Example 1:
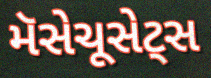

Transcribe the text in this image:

મૅસેચૂસેટ્સ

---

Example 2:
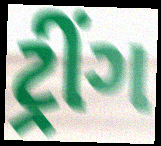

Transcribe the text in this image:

ટ્રીંગ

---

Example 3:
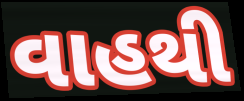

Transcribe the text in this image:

વાહથી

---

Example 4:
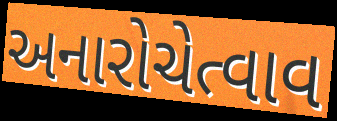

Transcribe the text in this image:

અનારોચેત્વાવ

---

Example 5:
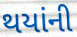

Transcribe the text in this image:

થયાંની